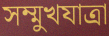
সম্মুখযাত্রা